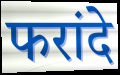
फरांदे